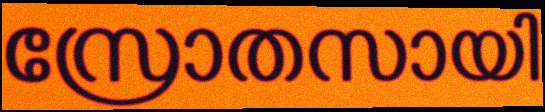
സ്രോതസായി